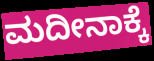
ಮದೀನಾಕ್ಕೆ